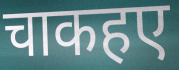
चाकहए